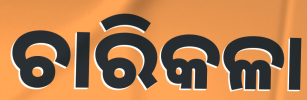
ଚାରିକଳା